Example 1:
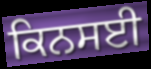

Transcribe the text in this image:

ਕਿਨਸਈ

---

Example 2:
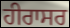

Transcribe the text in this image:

ਹੀਰਾਸਰ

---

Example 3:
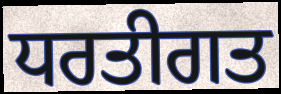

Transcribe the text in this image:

ਧਰਤੀਗਤ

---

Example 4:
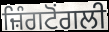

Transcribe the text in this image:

ਜ਼ਿੰਗਟੋਂਗਲੀ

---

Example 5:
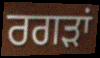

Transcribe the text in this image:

ਰਗੜਾਂ